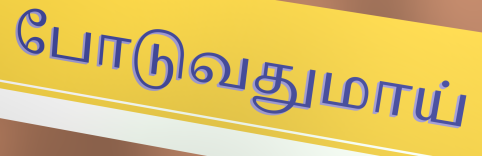
போடுவதுமாய்